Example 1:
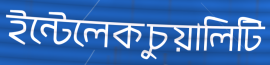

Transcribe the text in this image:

ইন্টেলেকচুয়ালিটি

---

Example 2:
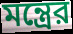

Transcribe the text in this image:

মন্ত্রের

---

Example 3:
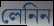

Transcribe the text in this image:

লেনিন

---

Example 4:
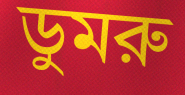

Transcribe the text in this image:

ডুমরু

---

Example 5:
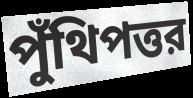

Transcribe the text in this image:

পুঁথিপত্তর